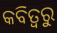
କବିତ୍ଵରୁ